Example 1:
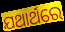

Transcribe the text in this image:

ଯଥାର୍ଥରେ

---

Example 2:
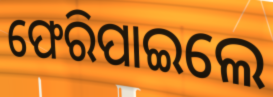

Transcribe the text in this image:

ଫେରିପାଇଲେ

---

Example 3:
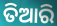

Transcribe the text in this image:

ତିଆରି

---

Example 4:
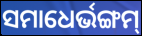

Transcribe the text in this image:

ସମାଧେର୍ଭଙ୍ଗମ୍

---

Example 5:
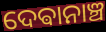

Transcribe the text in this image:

ଦେଵାନାଞ୍ଚ